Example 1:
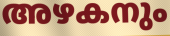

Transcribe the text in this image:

അഴകനും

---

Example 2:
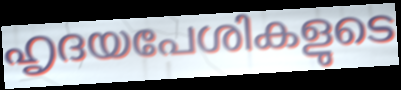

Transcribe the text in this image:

ഹൃദയപേശികളുടെ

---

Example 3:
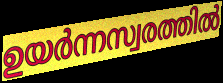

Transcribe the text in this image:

ഉയർന്നസ്വരത്തിൽ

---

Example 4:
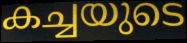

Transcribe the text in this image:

കച്ചയുടെ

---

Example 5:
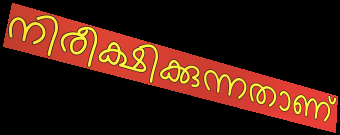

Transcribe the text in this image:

നിരീക്ഷിക്കുന്നതാണ്